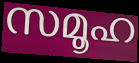
സമൂഹ